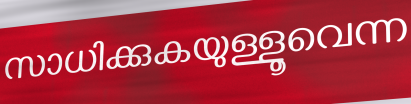
സാധിക്കുകയുള്ളൂവെന്ന